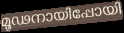
മൂഢനായിപ്പോയി